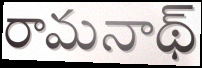
రామనాథ్